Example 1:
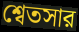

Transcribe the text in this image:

শ্বেতসার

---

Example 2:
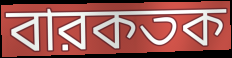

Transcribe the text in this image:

বারকতক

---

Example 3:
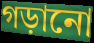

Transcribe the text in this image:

গড়ানো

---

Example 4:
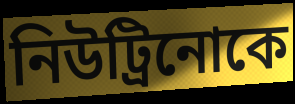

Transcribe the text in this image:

নিউট্রিনোকে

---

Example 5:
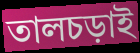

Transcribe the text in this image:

তালচড়াই